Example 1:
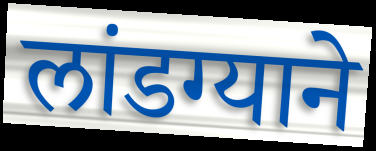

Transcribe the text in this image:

लांडग्याने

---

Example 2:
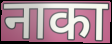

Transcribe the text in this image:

नाका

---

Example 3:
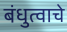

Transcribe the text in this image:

बंधुत्वाचे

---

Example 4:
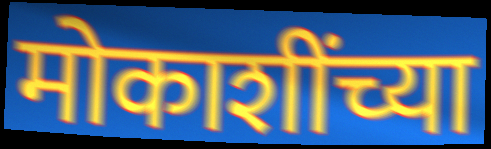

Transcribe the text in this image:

मोकाशींच्या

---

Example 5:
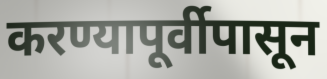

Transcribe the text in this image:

करण्यापूर्वीपासून